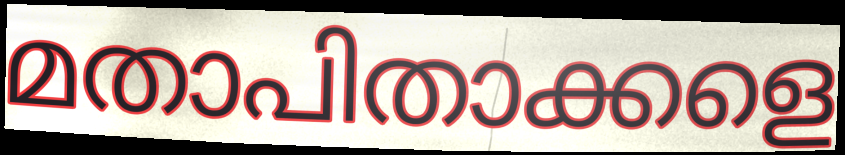
മതാപിതാക്കളെ